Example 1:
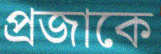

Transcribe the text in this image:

প্রজাকে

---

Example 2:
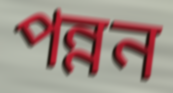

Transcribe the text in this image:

পন্নন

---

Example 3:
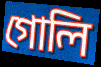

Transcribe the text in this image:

গোলি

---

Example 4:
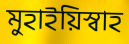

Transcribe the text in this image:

মুহাইয়িস্বাহ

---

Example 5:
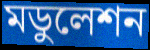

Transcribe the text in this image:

মডুলেশন